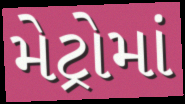
મેટ્રોમાં